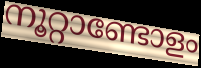
നൂറ്റാണ്ടോളം